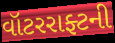
વૉટરરાફ્ટની